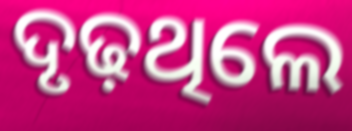
ଦୃଢ଼ଥିଲେ